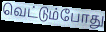
வெட்டும்போது